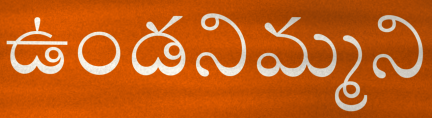
ఉండనిమ్మని